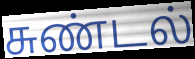
சுண்டல்